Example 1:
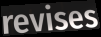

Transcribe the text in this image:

revises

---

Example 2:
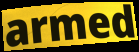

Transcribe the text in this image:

armed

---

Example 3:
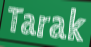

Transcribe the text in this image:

Tarak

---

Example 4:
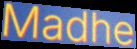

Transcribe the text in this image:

Madhe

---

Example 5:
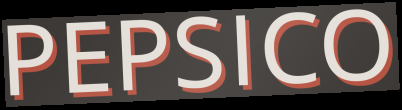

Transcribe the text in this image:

PEPSICO